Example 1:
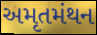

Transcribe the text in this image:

અમૃતમંથન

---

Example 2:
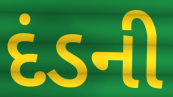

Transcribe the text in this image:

દંડની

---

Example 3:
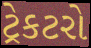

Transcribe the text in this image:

ટ્રેકટરો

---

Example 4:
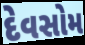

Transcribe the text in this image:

દેવસોમ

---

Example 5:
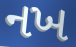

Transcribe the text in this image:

નખ